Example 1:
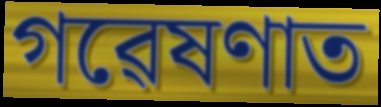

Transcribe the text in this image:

গৱেষণাত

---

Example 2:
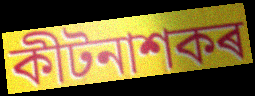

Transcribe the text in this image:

কীটনাশকৰ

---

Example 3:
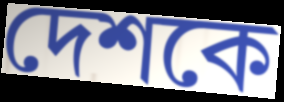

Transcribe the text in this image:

দেশকে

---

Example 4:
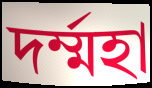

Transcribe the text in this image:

দৰ্ম্মহা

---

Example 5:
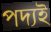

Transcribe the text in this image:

পদ্যই